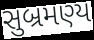
સુબ્રમણ્ય